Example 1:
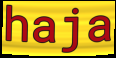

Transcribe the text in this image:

haja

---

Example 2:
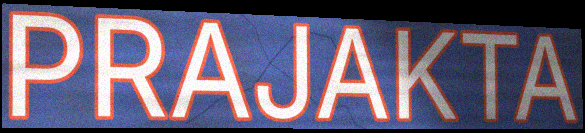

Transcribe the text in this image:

PRAJAKTA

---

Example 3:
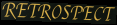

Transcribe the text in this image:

RETROSPECT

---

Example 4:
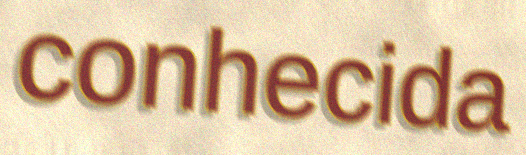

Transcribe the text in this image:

conhecida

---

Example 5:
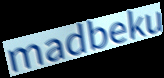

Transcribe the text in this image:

madbeku